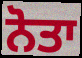
ਨੋਤਾ